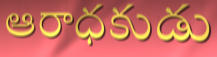
ఆరాధకుడు